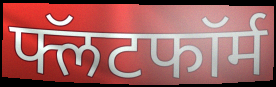
फ्लॅटफॉर्म